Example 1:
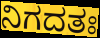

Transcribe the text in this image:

ನಿಗದತಃ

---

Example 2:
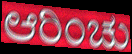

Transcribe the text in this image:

ಆರಿಂಚು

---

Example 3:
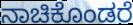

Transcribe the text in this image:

ನಾಚಿಕೊಂಡರೆ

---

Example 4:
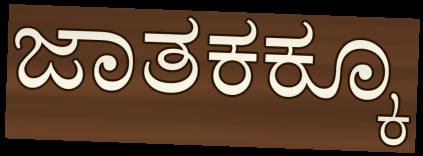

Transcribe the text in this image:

ಜಾತಕಕ್ಕೂ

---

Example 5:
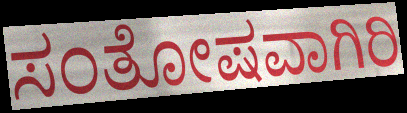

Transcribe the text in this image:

ಸಂತೋಷವಾಗಿರಿ